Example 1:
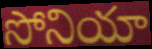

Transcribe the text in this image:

సోనియా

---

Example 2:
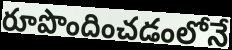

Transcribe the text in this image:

రూపొందించడంలోనే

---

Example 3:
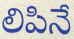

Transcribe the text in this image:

లిపినే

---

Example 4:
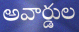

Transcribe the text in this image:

అవార్డుల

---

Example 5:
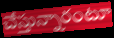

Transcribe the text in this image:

చేస్తున్నారంటూ